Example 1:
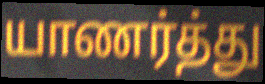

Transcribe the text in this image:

யாணர்த்து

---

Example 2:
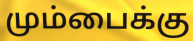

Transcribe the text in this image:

மும்பைக்கு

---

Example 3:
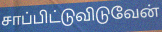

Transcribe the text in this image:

சாப்பிட்டுவிடுவேன்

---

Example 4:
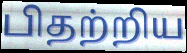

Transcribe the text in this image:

பிதற்றிய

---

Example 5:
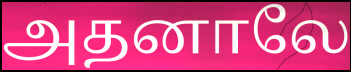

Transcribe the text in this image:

அதனாலே